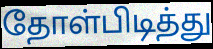
தோள்பிடித்து